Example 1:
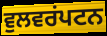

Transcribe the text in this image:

ਵੁਲਵਰਂਪਟਨ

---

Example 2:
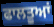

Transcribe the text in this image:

ਫਾਲਤੂਆਂ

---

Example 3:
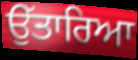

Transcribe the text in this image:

ਉੱਤਾਰਿਆ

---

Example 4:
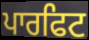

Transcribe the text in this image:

ਪਾਰਫਿਟ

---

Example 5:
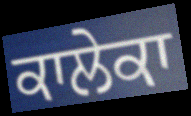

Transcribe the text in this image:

ਕਾਲੇਕਾ